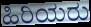
ಹಿರಿಯರು